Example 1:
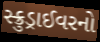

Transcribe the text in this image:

સ્ક્રુડ્રાઈવરનો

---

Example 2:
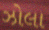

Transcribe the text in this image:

ઝોલા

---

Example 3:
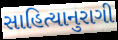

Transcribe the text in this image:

સાહિત્યાનુરાગી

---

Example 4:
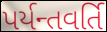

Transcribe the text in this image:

પર્યન્તવર્તિ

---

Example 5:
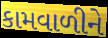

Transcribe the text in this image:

કામવાળીને